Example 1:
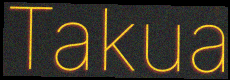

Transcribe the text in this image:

Takua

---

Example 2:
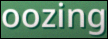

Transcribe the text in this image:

oozing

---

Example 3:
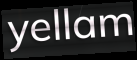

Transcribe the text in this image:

yellam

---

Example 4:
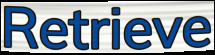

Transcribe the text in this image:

Retrieve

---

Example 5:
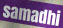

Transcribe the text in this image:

samadhi